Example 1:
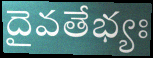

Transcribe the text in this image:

దైవతేభ్యః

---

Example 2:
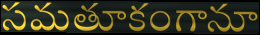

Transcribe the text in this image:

సమతూకంగానూ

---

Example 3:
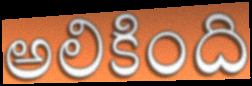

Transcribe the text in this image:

అలికింది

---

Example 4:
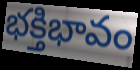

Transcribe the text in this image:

భక్తిభావం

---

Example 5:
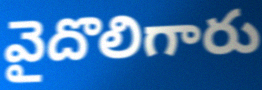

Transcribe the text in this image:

వైదొలిగారు